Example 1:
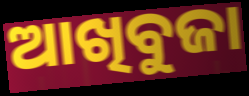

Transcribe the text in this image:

ଆଖିବୁଜା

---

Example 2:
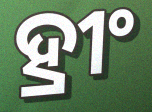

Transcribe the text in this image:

ହ୍ରୀଂ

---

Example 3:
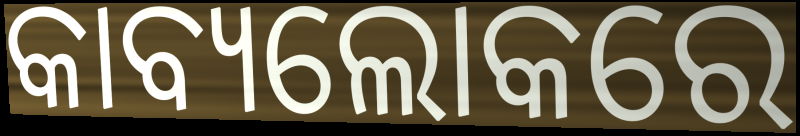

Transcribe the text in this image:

କାବ୍ୟଲୋକରେ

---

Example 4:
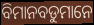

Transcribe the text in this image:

ବିମାନବଡୁମାନେ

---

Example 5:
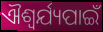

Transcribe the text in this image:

ଐଶ୍ୱର୍ଯ୍ୟପାଇଁ